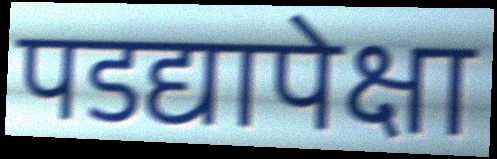
पडद्यापेक्षा